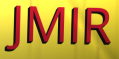
JMIR